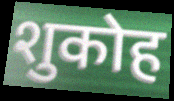
शुकोह